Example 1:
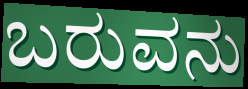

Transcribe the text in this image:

ಬರುವನು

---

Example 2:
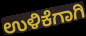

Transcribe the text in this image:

ಉಳಿಕೆಗಾಗಿ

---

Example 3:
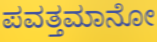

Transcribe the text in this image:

ಪವತ್ತಮಾನೋ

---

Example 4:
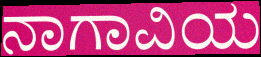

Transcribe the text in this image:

ನಾಗಾವಿಯ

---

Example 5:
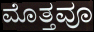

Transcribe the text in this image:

ಮೊತ್ತವೂ